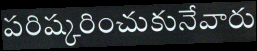
పరిష్కరించుకునేవారు